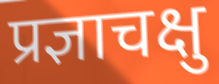
प्रज्ञाचक्षु